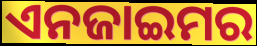
ଏନଜାଇମର